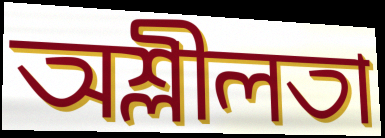
অশ্লীলতা